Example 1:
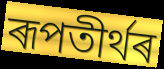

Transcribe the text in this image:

ৰূপতীৰ্থৰ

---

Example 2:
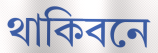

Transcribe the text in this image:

থাকিবনে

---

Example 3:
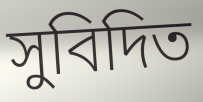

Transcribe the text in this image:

সুবিদিত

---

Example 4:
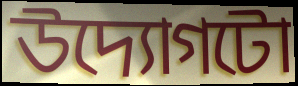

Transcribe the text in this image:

উদ্যোগটো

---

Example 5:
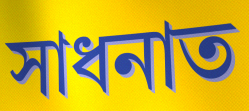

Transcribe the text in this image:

সাধনাত